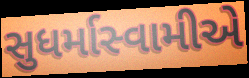
સુધર્માસ્વામીએ